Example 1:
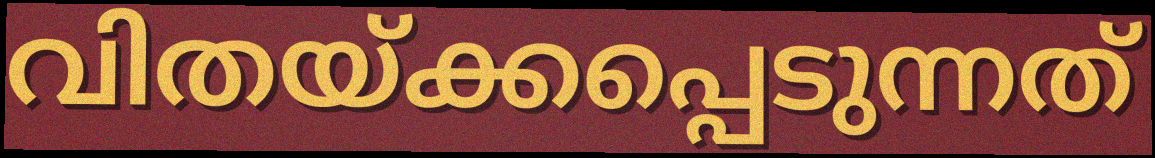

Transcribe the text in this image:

വിതയ്ക്കപ്പെടുന്നത്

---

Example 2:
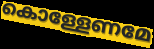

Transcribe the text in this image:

കൊള്ളേണമേ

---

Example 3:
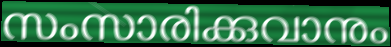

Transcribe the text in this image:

സംസാരിക്കുവാനും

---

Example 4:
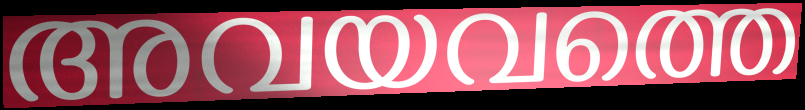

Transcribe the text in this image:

അവയവത്തെ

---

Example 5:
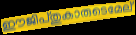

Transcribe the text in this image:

ഈജിപ്തുകാരുടെമേല്